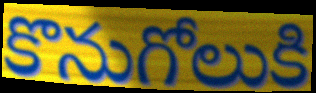
కొనుగోలుకి